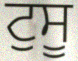
ਟੁਸੂ